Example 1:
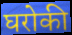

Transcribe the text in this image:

घरोकी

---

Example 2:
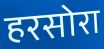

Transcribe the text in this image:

हरसोरा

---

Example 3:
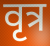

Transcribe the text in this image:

वृत्र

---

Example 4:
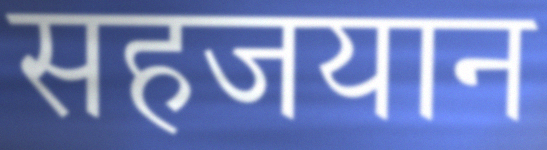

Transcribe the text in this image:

सहजयान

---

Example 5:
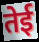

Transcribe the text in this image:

तेई